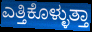
ಎತ್ತಿಕೊಳ್ಳುತ್ತಾ